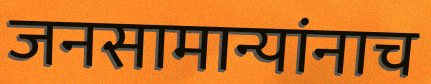
जनसामान्यांनाच